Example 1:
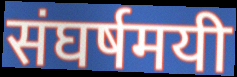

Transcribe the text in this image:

संघर्षमयी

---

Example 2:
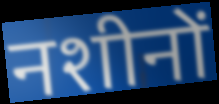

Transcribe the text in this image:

नशीनों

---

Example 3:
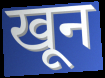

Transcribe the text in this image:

खून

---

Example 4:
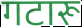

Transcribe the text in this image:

गटारू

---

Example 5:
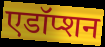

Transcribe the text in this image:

एडॉप्शन